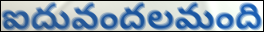
ఐదువందలమంది